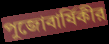
পুজোবার্ষিকীর